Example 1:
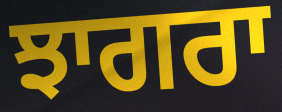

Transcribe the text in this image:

ਝਾਗਰਾ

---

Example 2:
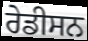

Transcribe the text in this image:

ਰੇਡੀਸਨ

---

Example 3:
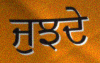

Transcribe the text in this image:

ਜੁਝਦੇ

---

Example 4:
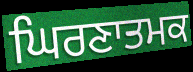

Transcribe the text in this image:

ਘਿਰਣਾਤਮਕ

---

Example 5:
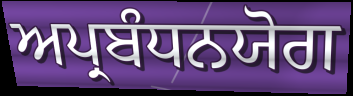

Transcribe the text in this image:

ਅਪ੍ਰਬੰਧਨਯੋਗ